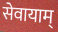
सेवायाम्